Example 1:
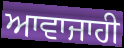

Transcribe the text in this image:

ਆਵਾਜਾਹੀ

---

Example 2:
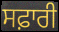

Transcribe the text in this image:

ਸਫ਼ਾਰੀ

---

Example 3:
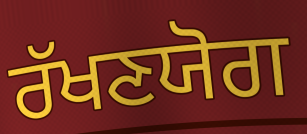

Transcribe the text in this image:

ਰੱਖਣਯੋਗ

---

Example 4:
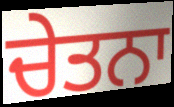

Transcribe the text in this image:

ਚੇਤਨਾ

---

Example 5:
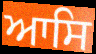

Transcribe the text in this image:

ਆਸਿ